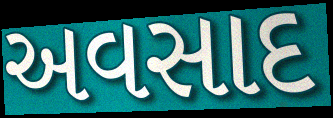
અવસાદ